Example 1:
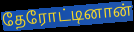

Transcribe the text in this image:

தேரோட்டினான்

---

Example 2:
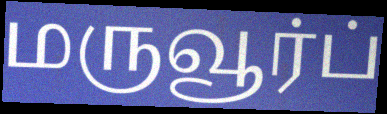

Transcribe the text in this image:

மருவூர்ப்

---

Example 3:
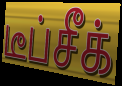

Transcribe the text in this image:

டீப்சீக்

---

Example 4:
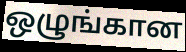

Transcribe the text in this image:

ஒழுங்கான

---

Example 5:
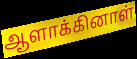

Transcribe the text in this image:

ஆளாக்கினாள்